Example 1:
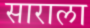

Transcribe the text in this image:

साराला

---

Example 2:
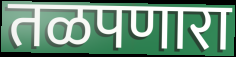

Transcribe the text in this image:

तळपणारा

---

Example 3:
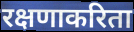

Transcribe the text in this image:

रक्षणाकरिता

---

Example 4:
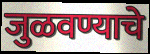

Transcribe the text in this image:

जुळवण्याचे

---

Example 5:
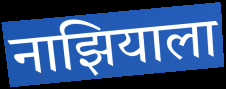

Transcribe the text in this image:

नाझियाला